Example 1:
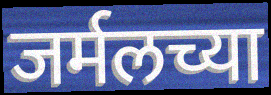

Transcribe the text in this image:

जर्मलच्या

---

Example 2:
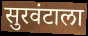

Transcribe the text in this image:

सुरवंटाला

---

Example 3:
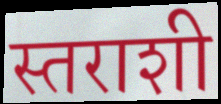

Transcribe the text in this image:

स्तराशी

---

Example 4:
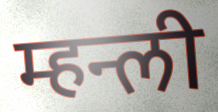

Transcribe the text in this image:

म्हन्ली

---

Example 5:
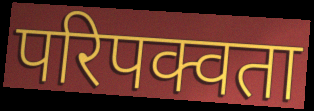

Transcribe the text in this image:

परिपक्वता